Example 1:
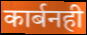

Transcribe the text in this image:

कार्बनही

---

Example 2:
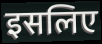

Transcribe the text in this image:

इसलिए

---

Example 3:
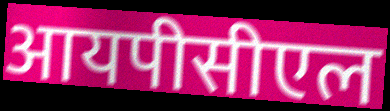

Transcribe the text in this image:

आयपीसीएल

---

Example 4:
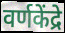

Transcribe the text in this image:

वर्णकेंद्रे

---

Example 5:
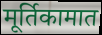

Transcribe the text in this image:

मूर्तिकामात